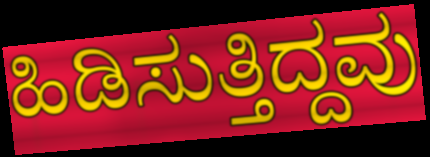
ಹಿಡಿಸುತ್ತಿದ್ದವು